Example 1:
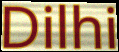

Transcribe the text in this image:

Dilhi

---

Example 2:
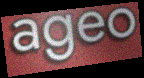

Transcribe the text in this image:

ageo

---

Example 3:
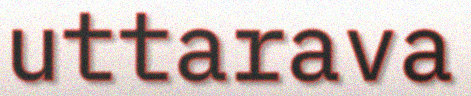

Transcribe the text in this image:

uttarava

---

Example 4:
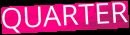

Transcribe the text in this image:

QUARTER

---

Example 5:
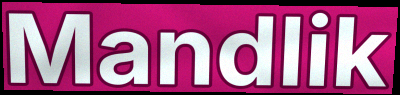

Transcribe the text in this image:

Mandlik